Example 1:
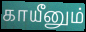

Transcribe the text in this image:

காயீனும்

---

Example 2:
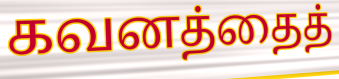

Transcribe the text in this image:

கவனத்தைத்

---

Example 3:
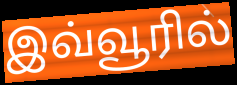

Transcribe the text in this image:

இவ்வூரில்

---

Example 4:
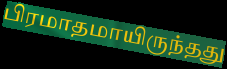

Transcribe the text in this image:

பிரமாதமாயிருந்தது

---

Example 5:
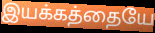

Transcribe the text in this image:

இயக்கத்தையே